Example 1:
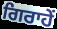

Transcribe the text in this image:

ਗਿਰਾਹੇਂ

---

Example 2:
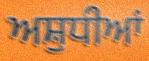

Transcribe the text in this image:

ਅਸ਼ੁਧੀਆਂ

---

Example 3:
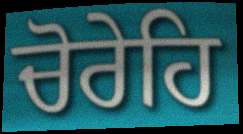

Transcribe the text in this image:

ਚੋਰੇਹਿ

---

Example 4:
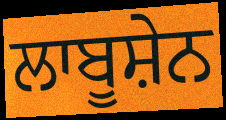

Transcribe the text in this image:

ਲਾਬੂਸ਼ੇਨ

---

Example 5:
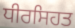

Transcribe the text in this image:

ਧੀਰਸਿਹਤ